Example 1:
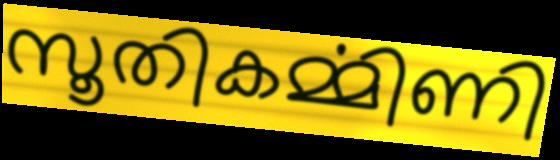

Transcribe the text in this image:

സൂതികൎമ്മിണി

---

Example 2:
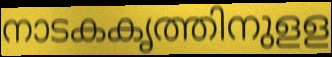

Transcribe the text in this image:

നാടകകൃത്തിനുളള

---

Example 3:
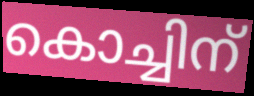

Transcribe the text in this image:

കൊച്ചിന്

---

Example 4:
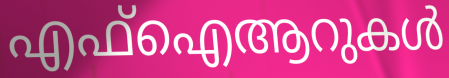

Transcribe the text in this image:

എഫ്ഐആറുകൾ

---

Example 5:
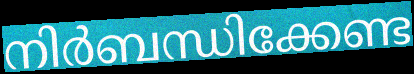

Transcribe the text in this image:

നിർബന്ധിക്കേണ്ട